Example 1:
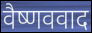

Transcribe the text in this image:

वैष्णववाद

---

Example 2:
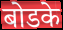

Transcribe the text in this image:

बोडके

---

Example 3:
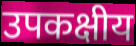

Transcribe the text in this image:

उपकक्षीय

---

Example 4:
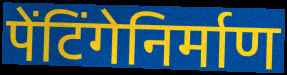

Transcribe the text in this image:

पेंटिंगेनिर्माण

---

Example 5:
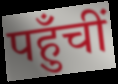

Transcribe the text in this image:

पहुँचीं